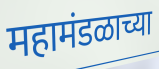
महामंडळाच्या